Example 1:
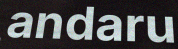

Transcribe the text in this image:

andaru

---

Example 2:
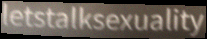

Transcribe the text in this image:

letstalksexuality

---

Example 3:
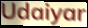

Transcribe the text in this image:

Udaiyar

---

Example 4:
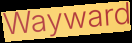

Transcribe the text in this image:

Wayward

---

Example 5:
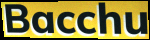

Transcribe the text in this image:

Bacchu